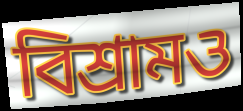
বিশ্রামও